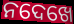
ନଦେଖେ